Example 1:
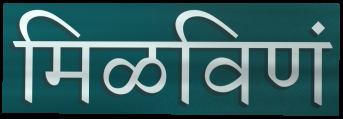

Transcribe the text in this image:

मिळविणं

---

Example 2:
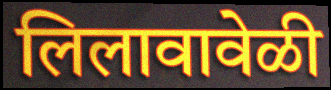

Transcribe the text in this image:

लिलावावेळी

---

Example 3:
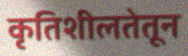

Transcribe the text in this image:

कृतिशीलतेतून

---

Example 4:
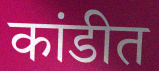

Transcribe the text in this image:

कांडीत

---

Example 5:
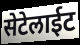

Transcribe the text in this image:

सेटेलाईट